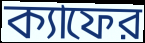
ক্যাফের